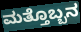
ಮತ್ತೊಬ್ಬನ